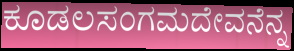
ಕೂಡಲಸಂಗಮದೇವನೆನ್ನ